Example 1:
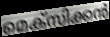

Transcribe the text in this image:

മെക്സിക്കൻ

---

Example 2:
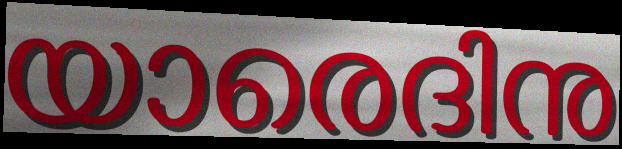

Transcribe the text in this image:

യാരെദിനു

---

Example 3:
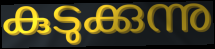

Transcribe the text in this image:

കുടുക്കുന്നു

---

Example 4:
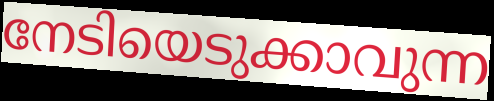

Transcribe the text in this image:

നേടിയെടുക്കാവുന്ന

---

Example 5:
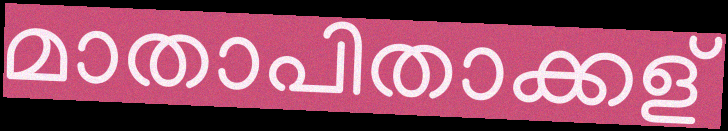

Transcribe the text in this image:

മാതാപിതാക്കള്